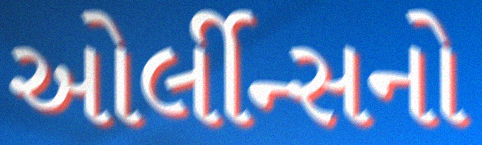
ઓર્લીન્સનો